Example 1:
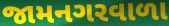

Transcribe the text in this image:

જામનગરવાળા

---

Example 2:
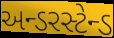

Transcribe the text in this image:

અન્ડરસ્ટેન્ડ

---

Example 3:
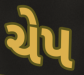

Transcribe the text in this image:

ચેપ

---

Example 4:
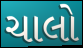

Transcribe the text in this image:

ચાલો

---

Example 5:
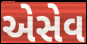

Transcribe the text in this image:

એસેવ